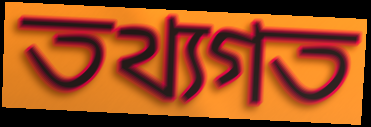
তথ্যগত